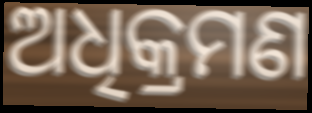
ଅଧିକ୍ରମଣ